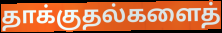
தாக்குதல்களைத்